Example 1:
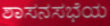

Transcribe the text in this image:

ಶಾಸನಸಭೆಯ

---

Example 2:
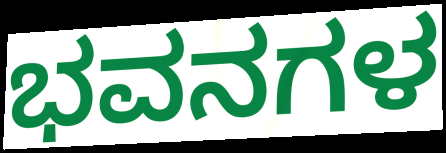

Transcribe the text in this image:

ಭವನಗಳ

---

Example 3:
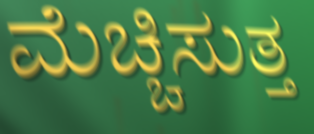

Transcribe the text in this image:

ಮೆಚ್ಚಿಸುತ್ತ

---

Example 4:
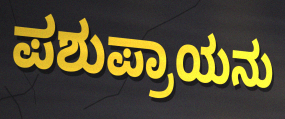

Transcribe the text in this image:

ಪಶುಪ್ರಾಯನು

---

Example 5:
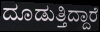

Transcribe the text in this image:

ದೂಡುತ್ತಿದ್ದಾರೆ